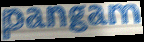
pangam